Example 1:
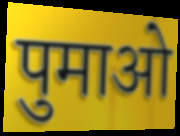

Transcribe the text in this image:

पुमाओ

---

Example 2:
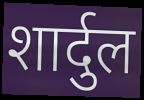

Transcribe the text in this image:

शार्दुल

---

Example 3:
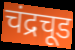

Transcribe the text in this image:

चंद्रचूड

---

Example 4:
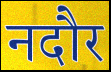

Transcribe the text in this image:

नदौर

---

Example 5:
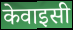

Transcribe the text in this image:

केवाइसी